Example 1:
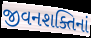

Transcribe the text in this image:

જીવનશક્તિનાં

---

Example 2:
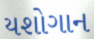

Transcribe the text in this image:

યશોગાન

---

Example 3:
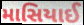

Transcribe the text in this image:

માસિયાઈ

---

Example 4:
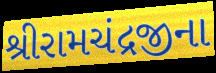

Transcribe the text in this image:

શ્રીરામચંદ્રજીના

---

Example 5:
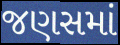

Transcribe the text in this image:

જણસમાં